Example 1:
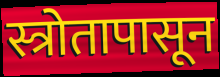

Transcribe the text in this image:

स्त्रोतापासून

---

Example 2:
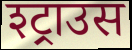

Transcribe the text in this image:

श्ट्राउस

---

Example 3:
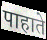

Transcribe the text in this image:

पाहाते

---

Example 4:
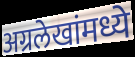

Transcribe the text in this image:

अग्रलेखांमध्ये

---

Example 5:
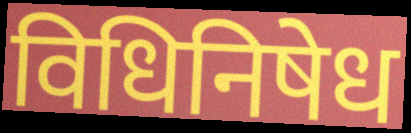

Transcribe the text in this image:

विधिनिषेध